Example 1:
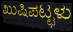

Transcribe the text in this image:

ಖುಷಿಪಟ್ಟಳು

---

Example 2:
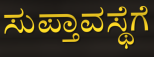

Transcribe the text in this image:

ಸುಪ್ತಾವಸ್ಥೆಗೆ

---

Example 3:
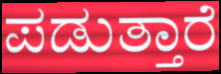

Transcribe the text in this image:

ಪಡುತ್ತಾರೆ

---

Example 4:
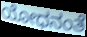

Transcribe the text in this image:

ಯೋಧನಂತೆ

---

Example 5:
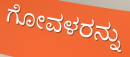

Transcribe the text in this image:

ಗೋವಳರನ್ನು